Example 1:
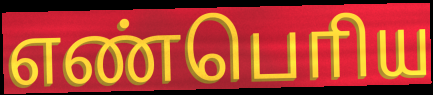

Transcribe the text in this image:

எண்பெரிய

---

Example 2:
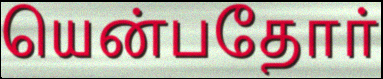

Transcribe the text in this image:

யென்பதோர்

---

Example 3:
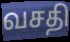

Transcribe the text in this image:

வசதி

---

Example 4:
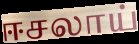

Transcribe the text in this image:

ஈசலாய்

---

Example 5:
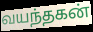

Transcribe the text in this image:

வயந்தகன்